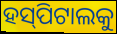
ହସ୍‌ପିଟାଲକୁ